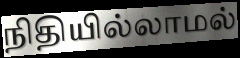
நிதியில்லாமல்